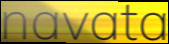
navata